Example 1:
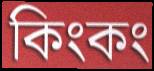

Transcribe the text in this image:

কিংকং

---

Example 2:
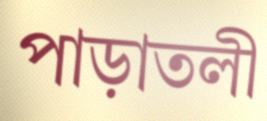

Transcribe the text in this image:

পাড়াতলী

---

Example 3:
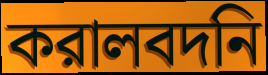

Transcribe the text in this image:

করালবদনি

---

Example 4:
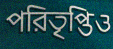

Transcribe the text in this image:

পরিতৃপ্তিও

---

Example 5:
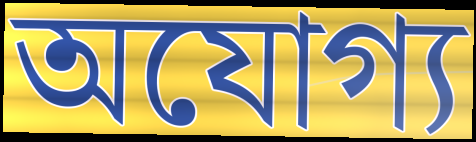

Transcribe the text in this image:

অযোগ্য